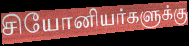
சியோனியர்களுக்கு